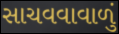
સાચવવાવાળું